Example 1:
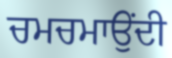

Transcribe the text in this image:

ਚਮਚਮਾਉਂਦੀ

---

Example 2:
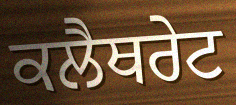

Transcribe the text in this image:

ਕਲੈਥਰੇਟ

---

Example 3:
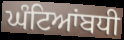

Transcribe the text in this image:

ਘੰਟਿਆਂਬਧੀ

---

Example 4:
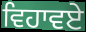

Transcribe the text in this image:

ਵਿਹਾਵਏ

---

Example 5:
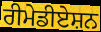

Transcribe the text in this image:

ਰੀਮੇਡੀਏਸ਼ਨ